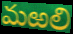
మఱలి